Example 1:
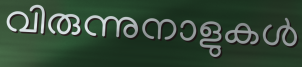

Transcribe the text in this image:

വിരുന്നുനാളുകൾ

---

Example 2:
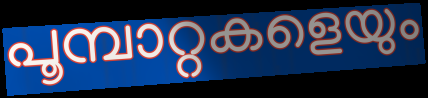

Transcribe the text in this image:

പൂമ്പാറ്റകളെയും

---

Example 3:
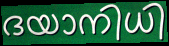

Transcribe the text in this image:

ദയാനിധി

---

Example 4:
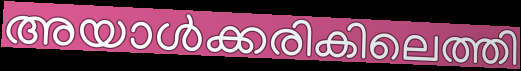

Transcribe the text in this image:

അയാൾക്കരികിലെത്തി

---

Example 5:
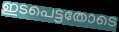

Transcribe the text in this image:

ഇടപെട്ടതോടെ